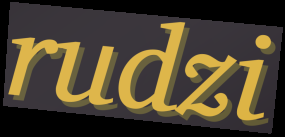
rudzi